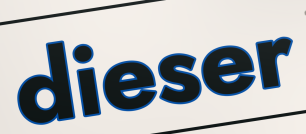
dieser